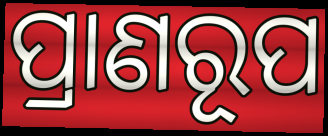
ପ୍ରାଣରୂପ